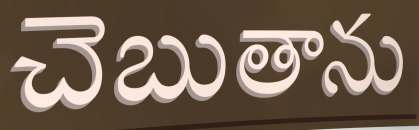
చెబుతాను